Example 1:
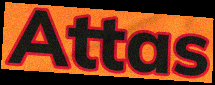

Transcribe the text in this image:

Attas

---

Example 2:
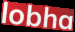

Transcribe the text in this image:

lobha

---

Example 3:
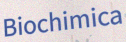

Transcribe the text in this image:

Biochimica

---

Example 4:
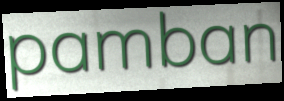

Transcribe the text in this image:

pamban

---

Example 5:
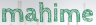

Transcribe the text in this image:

mahime